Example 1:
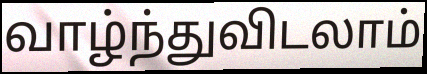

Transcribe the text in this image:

வாழ்ந்துவிடலாம்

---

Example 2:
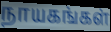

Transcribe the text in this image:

நாயகங்கள்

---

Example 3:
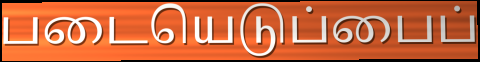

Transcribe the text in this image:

படையெடுப்பைப்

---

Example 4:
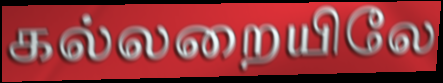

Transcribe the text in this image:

கல்லறையிலே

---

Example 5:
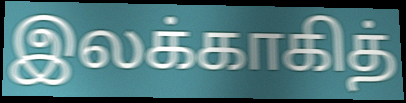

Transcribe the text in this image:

இலக்காகித்